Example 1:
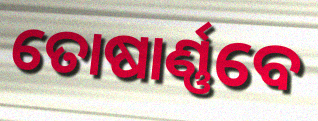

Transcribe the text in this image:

ତୋଷାର୍ଣ୍ଣବେ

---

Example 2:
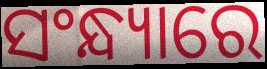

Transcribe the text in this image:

ସଂନ୍ଧ୍ଯାରେ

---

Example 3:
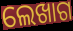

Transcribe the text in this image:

ଲେଖାଗ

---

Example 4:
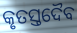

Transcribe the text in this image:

କୃତସ୍ତଦୈବ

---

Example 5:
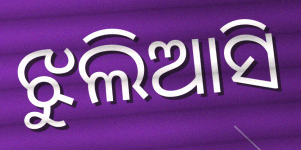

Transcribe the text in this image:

ଝୁଲିଆସି